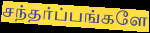
சந்தர்ப்பங்களே